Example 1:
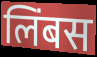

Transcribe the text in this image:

लिंबस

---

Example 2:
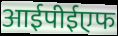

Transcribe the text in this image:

आईपीईएफ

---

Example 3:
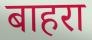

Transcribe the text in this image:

बाहरा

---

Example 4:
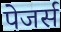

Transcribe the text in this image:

पेजर्स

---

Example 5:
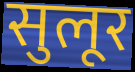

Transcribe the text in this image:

सुलूर